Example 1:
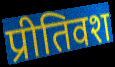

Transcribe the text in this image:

प्रीतिवश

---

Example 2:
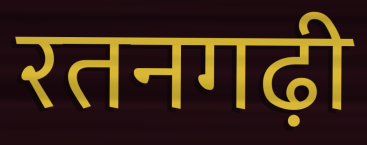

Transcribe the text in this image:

रतनगढ़ी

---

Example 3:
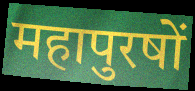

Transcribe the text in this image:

महापुरषों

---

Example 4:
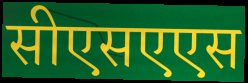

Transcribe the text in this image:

सीएसएएस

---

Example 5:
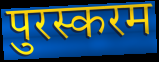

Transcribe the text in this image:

पुरस्करम